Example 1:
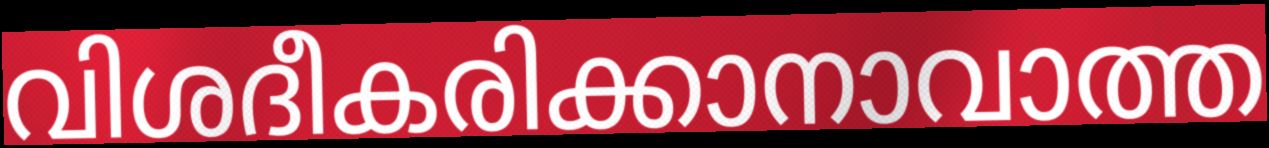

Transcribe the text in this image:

വിശദീകരിക്കാനാവാത്ത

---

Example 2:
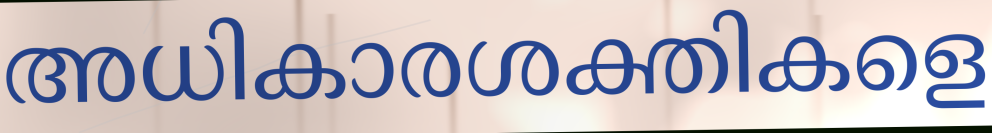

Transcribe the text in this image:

അധികാരശക്തികളെ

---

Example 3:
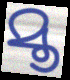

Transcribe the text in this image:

മൂ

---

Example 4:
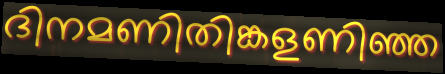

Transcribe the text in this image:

ദിനമണിതിങ്കളണിഞ്ഞ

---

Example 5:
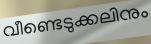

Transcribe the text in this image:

വീണ്ടെടുക്കലിനും